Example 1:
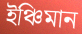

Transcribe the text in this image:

ইঞ্চিমান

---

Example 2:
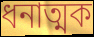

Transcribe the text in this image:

ধনাত্মক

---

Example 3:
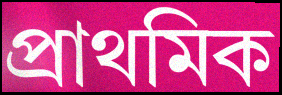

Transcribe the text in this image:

প্ৰাথমিক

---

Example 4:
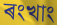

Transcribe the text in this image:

ৰংখাং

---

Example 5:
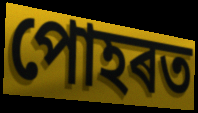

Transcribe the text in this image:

পোহৰত